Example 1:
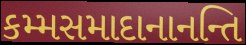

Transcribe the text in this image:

કમ્મસમાદાનાનન્તિ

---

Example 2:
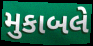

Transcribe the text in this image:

મુકાબલે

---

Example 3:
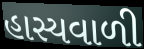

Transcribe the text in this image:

હાસ્યવાળી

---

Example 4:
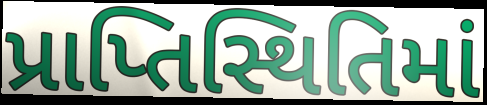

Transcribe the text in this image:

પ્રાપ્તિસ્થિતિમાં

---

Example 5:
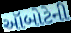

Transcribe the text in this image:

ઑબોટેની